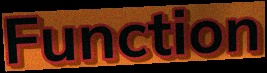
Function